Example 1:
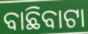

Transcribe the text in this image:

ବାଛିବାଟା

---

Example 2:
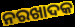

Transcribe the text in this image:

ନରଖାଦକ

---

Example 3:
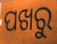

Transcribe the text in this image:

ପଖରୁ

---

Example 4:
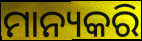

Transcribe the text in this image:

ମାନ୍ୟକରି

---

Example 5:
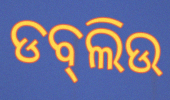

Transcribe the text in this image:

ଡବ୍‍ଲିଉ